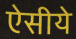
ऐसीये